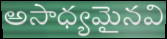
అసాధ్యమైనవి